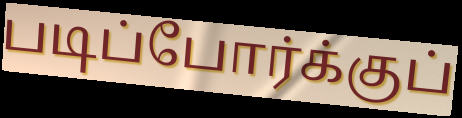
படிப்போர்க்குப்